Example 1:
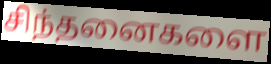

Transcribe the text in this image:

சிந்தனைகளை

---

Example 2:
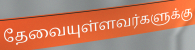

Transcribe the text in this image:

தேவையுள்ளவர்களுக்கு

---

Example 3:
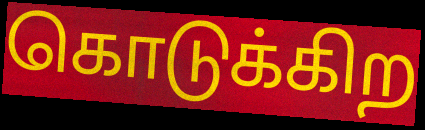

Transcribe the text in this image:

கொடுக்கிற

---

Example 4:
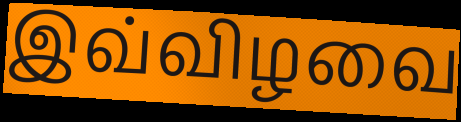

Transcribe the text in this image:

இவ்விழவை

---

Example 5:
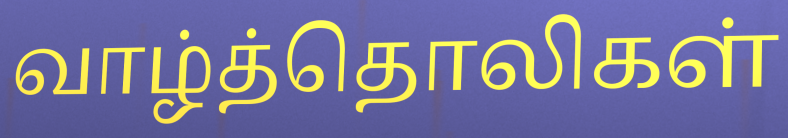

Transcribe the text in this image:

வாழ்த்தொலிகள்